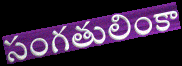
సంగతులింకా